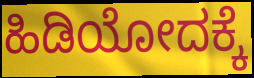
ಹಿಡಿಯೋದಕ್ಕೆ